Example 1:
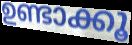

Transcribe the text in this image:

ഉണ്ടാക്കൂ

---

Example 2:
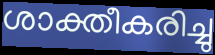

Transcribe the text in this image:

ശാക്തീകരിച്ചു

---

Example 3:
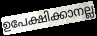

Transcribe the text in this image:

ഉപേക്ഷിക്കാനല്ല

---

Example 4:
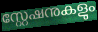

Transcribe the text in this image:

സ്റ്റേഷനുകളും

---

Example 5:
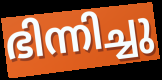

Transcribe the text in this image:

ഭിന്നിച്ചു